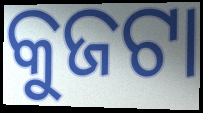
କୁଜଟା